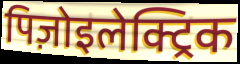
पिज़ोइलेक्ट्रिक